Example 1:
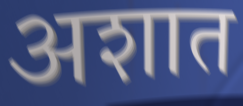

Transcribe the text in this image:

अशात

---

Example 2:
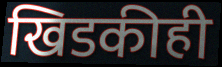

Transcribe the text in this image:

खिडकीही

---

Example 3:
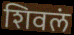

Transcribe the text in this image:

शिवलं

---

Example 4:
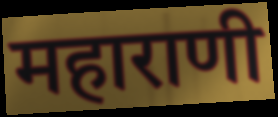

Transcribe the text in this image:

महाराणी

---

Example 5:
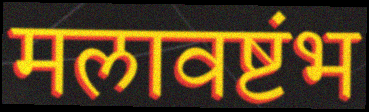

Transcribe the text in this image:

मलावष्टंभ